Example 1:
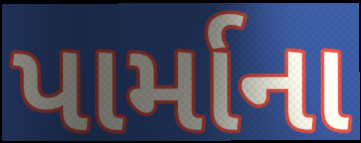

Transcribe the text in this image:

પાર્માના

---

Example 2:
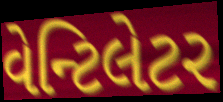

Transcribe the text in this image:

વેન્‍ટિલેટર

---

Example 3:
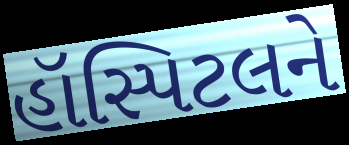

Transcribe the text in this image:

હૉસ્પિટલને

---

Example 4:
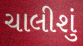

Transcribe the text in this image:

ચાલીશું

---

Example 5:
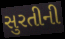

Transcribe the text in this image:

સુરતીની